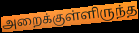
அறைக்குள்ளிருந்த